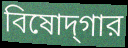
বিষোদ্‌গার